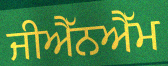
ਜੀਐੱਨਐੱਮ